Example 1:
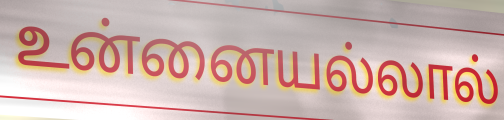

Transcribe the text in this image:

உன்னையல்லால்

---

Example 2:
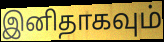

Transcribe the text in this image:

இனிதாகவும்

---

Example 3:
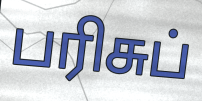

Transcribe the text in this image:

பரிசுப்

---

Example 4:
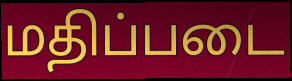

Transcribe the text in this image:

மதிப்படை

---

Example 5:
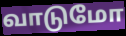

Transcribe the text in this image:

வாடுமோ